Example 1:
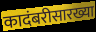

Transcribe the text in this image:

कादंबरीसारख्या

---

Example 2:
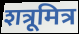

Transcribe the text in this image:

शत्रूमित्र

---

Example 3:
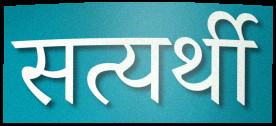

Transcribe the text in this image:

सत्यर्थी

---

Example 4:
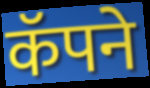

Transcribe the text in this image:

कॅपने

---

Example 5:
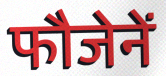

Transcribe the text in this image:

फौजेनें